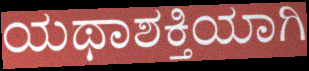
ಯಥಾಶಕ್ತಿಯಾಗಿ